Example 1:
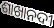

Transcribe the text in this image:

ଶାଖାନଦୀ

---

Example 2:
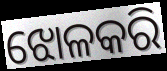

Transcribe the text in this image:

ଝୋଳକରି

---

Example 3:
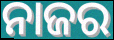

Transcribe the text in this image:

ନାଜର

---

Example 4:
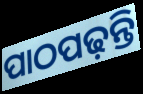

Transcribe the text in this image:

ପାଠପଢ଼ନ୍ତି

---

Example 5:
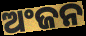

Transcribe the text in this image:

ଅଂଜନ